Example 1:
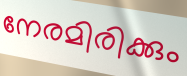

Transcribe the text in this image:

നേരമിരിക്കും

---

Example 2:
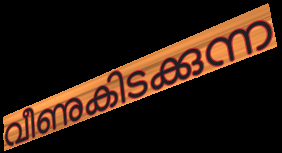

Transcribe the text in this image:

വീണുകിടക്കുന്ന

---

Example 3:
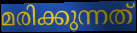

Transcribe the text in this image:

മരിക്കുന്നത്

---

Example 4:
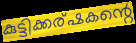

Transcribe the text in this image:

കുട്ടിക്കര്ഷകന്റെ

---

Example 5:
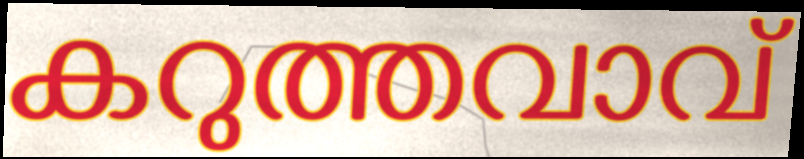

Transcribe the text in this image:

കറുത്തവാവ്